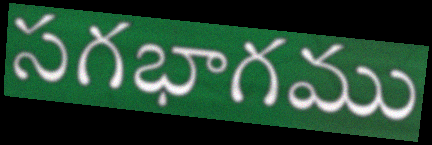
సగభాగము